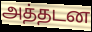
அத்தடன